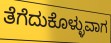
ತೆಗೆದುಕೊಳ್ಳುವಾಗ